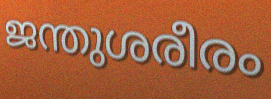
ജന്തുശരീരം